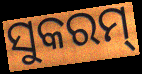
ସୁକରମ୍